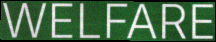
WELFARE